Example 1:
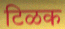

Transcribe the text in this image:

टिळक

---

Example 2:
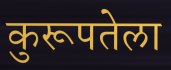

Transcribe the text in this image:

कुरूपतेला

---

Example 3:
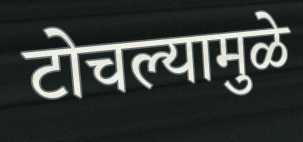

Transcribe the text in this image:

टोचल्यामुळे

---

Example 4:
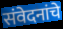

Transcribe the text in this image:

संवेदनांचे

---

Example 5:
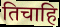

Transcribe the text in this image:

तिचाहि